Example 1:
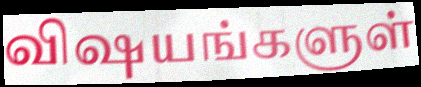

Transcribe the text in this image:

விஷயங்களுள்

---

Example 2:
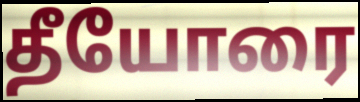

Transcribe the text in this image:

தீயோரை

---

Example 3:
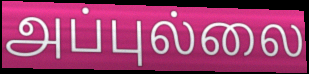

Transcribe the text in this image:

அப்புல்லை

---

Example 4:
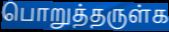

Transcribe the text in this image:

பொறுத்தருள்க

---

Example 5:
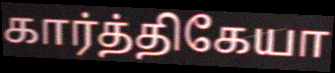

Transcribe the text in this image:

கார்த்திகேயா